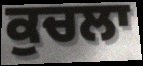
ਕੁਚਲਾ